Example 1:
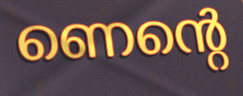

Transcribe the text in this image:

ണെന്റെ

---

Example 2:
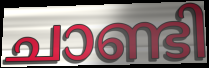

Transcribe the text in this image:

ചാണ്ടി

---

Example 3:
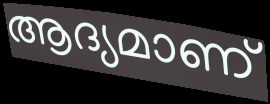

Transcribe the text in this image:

ആദ്യമാണ്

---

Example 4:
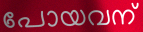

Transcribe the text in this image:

പോയവന്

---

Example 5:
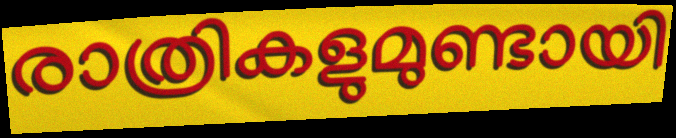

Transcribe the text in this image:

രാത്രികളുമുണ്ടായി